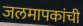
जलमापकांची